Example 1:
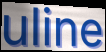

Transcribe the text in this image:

uline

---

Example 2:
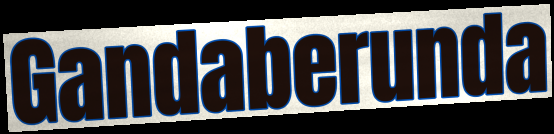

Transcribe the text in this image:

Gandaberunda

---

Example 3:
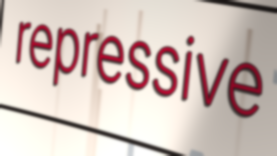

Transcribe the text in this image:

repressive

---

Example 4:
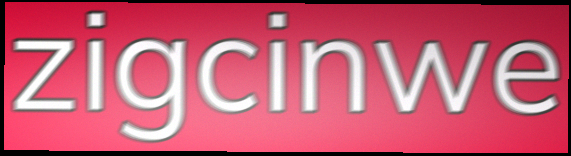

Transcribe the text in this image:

zigcinwe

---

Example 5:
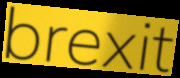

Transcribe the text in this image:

brexit